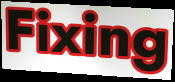
Fixing